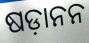
ଷଡ଼ାନନ